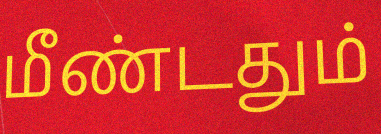
மீண்டதும்